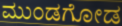
ಮುಂಡಗೋಡ